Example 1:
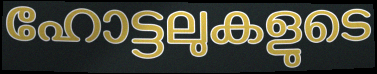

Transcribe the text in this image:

ഹോട്ടലുകളുടെ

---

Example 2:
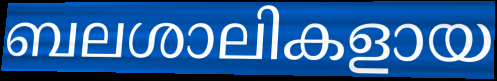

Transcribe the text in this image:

ബലശാലികളായ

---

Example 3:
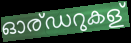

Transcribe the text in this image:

ഓര്ഡറുകള്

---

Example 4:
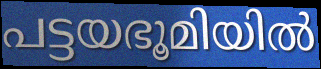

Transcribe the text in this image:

പട്ടയഭൂമിയിൽ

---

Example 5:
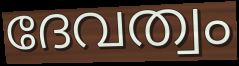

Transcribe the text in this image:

ദേവത്വം